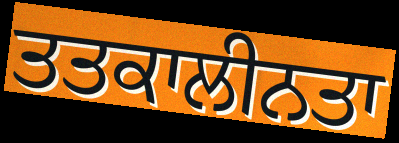
ਤਤਕਾਲੀਨਤਾ